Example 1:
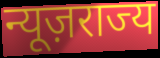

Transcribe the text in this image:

न्यूज़राज्य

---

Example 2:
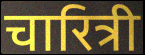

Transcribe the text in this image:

चारित्री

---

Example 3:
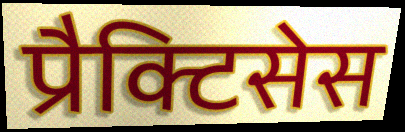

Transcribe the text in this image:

प्रैक्टिसेस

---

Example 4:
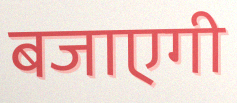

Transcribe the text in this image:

बजाएगी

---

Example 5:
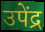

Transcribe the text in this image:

उपेंद्र